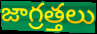
జాగ్రత్తలు